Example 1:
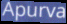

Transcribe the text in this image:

Apurva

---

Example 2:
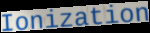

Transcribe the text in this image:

Ionization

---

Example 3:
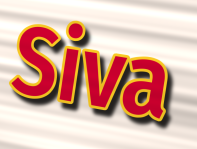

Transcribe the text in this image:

Siva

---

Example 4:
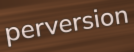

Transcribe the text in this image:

perversion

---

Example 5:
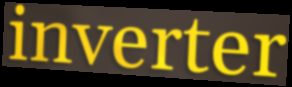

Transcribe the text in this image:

inverter